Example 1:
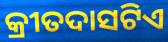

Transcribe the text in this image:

କ୍ରୀତଦାସଟିଏ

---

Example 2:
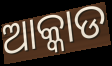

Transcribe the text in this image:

ଆକ୍କାଡ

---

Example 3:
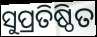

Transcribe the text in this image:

ସୁପ୍ରତିଷ୍ଠିତ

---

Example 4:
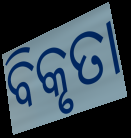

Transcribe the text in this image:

ବିକୃତା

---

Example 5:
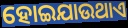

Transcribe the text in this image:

ହୋଇଯାଉଥାଏ